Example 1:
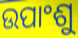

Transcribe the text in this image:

ଉପାଂଶୁ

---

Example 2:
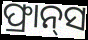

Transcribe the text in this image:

ଫ୍ରାନ୍‍ସ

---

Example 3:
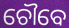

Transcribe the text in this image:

ଚୌବେ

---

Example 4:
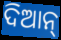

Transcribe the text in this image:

ଦିଆନ୍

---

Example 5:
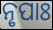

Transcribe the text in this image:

ନୃପାଃ